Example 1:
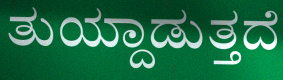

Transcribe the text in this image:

ತುಯ್ದಾಡುತ್ತದೆ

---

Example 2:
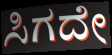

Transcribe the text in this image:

ಸಿಗದೇ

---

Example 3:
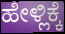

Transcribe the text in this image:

ಹೇಳ್ಲಿಕ್ಕೆ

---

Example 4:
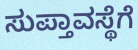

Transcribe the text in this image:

ಸುಪ್ತಾವಸ್ಥೆಗೆ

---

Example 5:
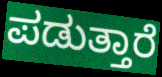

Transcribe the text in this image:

ಪಡುತ್ತಾರೆ